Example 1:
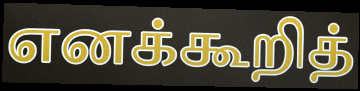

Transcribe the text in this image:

எனக்கூறித்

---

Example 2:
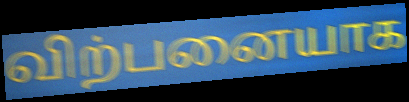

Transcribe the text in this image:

விற்பனையாக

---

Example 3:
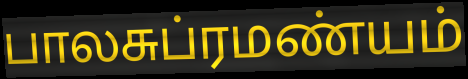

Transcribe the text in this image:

பாலசுப்ரமண்யம்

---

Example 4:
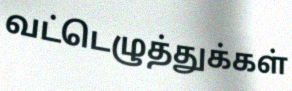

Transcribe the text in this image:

வட்டெழுத்துக்கள்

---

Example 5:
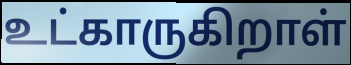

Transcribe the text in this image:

உட்காருகிறாள்